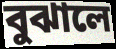
বুঝালে